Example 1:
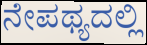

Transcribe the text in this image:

ನೇಪಥ್ಯದಲ್ಲಿ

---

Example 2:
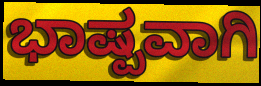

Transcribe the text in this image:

ಭಾಷ್ಪವಾಗಿ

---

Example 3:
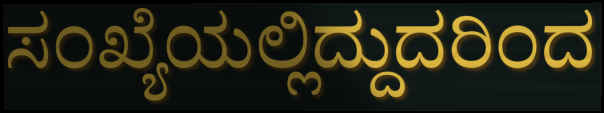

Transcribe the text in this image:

ಸಂಖ್ಯೆಯಲ್ಲಿದ್ದುದರಿಂದ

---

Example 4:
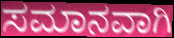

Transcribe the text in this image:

ಸಮಾನವಾಗಿ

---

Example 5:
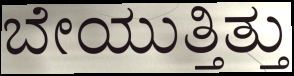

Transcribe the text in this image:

ಬೇಯುತ್ತಿತ್ತು